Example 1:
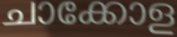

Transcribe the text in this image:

ചാക്കോള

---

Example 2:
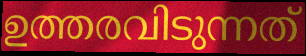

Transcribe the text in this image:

ഉത്തരവിടുന്നത്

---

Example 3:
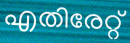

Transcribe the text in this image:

എതിരേറ്റ്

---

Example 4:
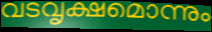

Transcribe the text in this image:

വടവൃക്ഷമൊന്നും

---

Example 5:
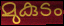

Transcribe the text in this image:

മുകുടം